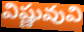
విష్ణువువి